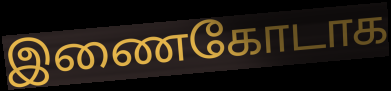
இணைகோடாக